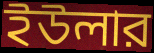
ইউলার